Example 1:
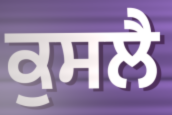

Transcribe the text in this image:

ਕੁਸਲੈ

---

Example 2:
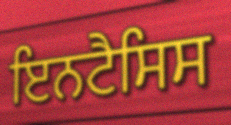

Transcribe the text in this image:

ਇਨਟੈਸਿਸ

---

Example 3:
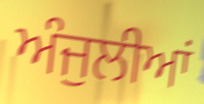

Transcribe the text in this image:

ਅੰਜੁਲੀਆਂ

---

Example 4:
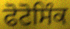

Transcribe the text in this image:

ਫੋਟੋਸਿੰਕ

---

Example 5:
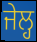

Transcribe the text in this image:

ਜੇਲ੍ਹ